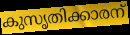
കുസൃതിക്കാരന്